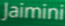
Jaimini